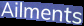
Ailments